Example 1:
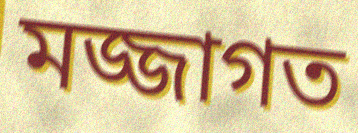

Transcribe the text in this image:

মজ্জাগত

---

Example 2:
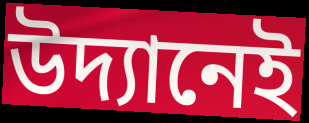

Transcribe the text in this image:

উদ্যানেই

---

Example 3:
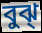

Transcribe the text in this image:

বুঝ্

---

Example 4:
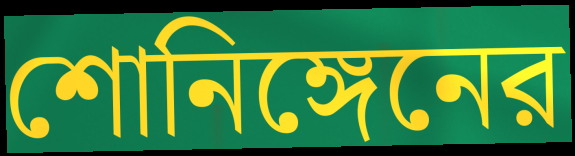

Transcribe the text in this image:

শোনিঙ্গেনের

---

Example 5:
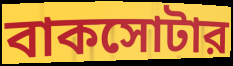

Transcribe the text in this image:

বাকসোটার